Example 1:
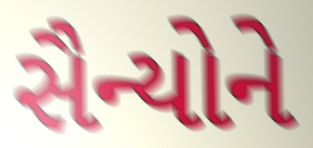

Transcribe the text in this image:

સૈન્યોને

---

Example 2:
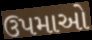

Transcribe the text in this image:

ઉપમાઓ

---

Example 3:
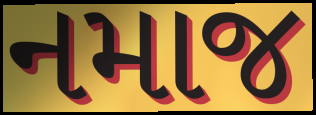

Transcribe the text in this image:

નમાજ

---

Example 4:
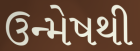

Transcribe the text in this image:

ઉન્મેષથી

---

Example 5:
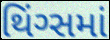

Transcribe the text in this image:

થિંગ્સમાં